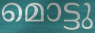
മൊട്ടു